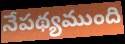
నేపథ్యముంది